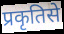
प्रकृतिसे